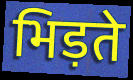
भिड़ते